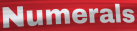
Numerals